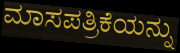
ಮಾಸಪತ್ರಿಕೆಯನ್ನು